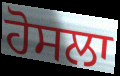
ਹੋਸਲਾ